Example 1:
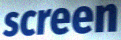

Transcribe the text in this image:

screen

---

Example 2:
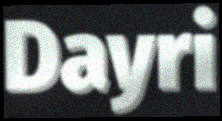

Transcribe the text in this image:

Dayri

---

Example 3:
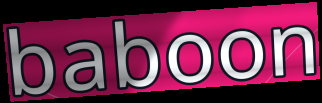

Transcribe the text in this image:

baboon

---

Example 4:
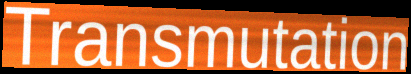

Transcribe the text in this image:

Transmutation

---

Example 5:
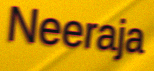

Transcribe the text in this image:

Neeraja